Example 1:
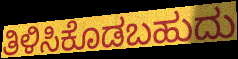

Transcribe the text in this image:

ತಿಳಿಸಿಕೊಡಬಹುದು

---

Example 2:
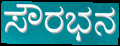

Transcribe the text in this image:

ಸೌರಭನ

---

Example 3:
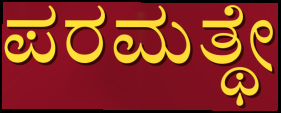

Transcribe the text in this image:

ಪರಮತ್ಥೇ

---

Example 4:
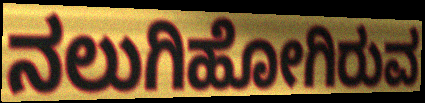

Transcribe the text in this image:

ನಲುಗಿಹೋಗಿರುವ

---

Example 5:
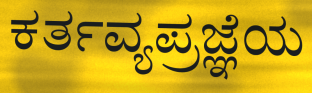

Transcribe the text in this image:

ಕರ್ತವ್ಯಪ್ರಜ್ಞೆಯ